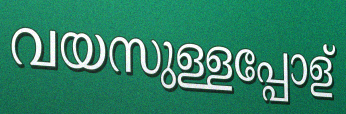
വയസുള്ളപ്പോള്